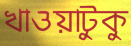
খাওয়াটুকু